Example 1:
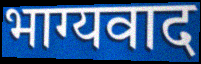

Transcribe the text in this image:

भाग्यवाद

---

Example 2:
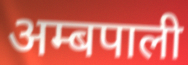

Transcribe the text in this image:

अम्बपाली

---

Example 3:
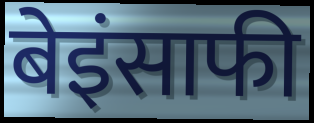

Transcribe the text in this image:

बेइंसाफी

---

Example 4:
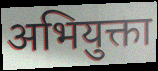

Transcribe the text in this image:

अभियुक्ता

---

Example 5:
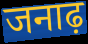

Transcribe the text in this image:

जनाढ़